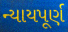
ન્યાયપૂર્ણ